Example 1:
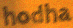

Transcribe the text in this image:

hodha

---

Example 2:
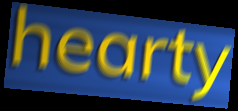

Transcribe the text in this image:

hearty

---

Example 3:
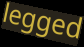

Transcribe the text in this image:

legged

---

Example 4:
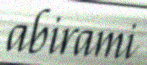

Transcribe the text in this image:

abirami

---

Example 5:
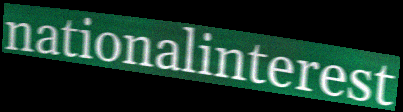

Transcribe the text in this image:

nationalinterest